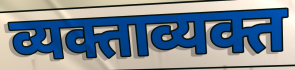
व्यक्ताव्यक्त